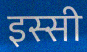
इस्सी